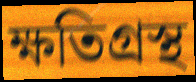
ক্ষতিগ্ৰস্থ